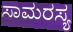
ಸಾಮರಸ್ಯ